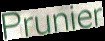
Prunier